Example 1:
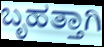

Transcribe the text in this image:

ಬೃಹತ್ತಾಗಿ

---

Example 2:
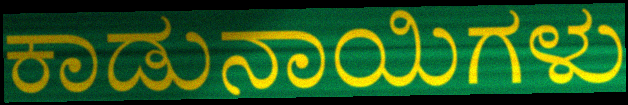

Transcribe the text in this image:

ಕಾಡುನಾಯಿಗಳು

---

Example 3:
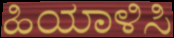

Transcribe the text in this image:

ಹಿಯಾಳಿಸಿ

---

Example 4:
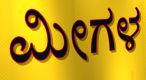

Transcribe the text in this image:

ಮೀಗಳ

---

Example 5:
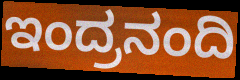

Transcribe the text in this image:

ಇಂದ್ರನಂದಿ